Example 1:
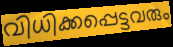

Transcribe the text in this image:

വിധിക്കപ്പെട്ടവരും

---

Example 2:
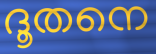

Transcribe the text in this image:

ദൂതനെ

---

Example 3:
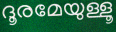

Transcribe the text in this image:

ദൂരമേയുള്ളൂ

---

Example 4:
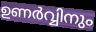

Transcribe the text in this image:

ഉണർവ്വിനും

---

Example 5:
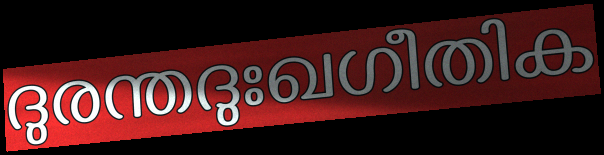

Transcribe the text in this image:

ദുരന്തദുഃഖഗീതിക